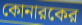
কোনারকের